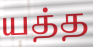
யத்த